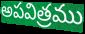
అపవిత్రము